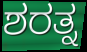
ಶರತ್ನ